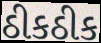
ઠીકઠીક